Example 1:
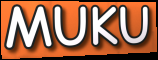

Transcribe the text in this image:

MUKU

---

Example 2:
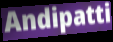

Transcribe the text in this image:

Andipatti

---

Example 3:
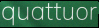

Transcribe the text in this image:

quattuor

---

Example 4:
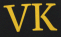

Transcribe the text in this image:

VK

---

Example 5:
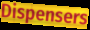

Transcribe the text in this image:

Dispensers